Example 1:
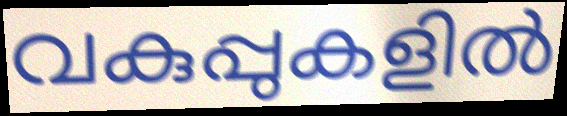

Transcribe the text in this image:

വകുപ്പുകളിൽ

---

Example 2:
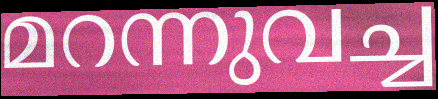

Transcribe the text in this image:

മറന്നുവച്ച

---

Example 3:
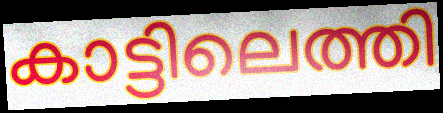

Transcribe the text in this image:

കാട്ടിലെത്തി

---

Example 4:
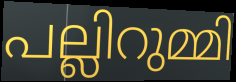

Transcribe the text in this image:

പല്ലിറുമ്മി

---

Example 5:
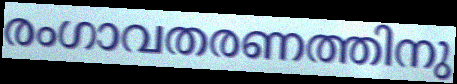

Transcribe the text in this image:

രംഗാവതരണത്തിനു